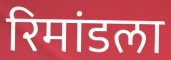
रिमांडला